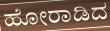
ಹೋರಾಡಿದ